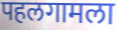
पहलगामला